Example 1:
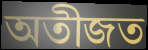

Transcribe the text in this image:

অতীজত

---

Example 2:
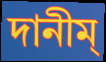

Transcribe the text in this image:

দানীম্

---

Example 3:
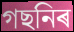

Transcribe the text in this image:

গছনিৰ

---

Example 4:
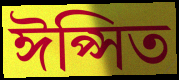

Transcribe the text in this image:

ঈপ্সিত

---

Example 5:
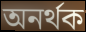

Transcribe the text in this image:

অনৰ্থক